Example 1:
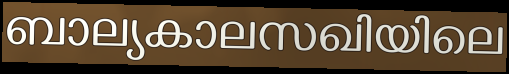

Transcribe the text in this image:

ബാല്യകാലസഖിയിലെ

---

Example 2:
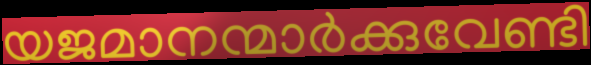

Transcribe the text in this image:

യജമാനന്മാർക്കുവേണ്ടി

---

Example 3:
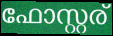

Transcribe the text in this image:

ഫോസ്റ്റര്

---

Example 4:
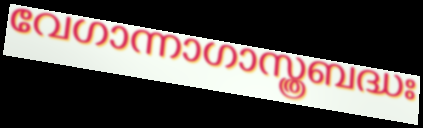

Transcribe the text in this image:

വേഗാന്നാഗാസ്ത്രബദ്ധഃ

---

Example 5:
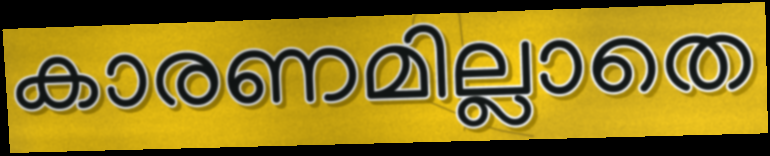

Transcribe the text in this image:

കാരണമില്ലാതെ